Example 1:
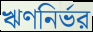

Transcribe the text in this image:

ঋণনির্ভর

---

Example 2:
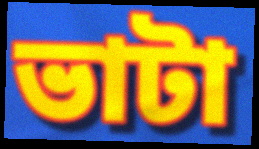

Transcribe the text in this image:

ভাটা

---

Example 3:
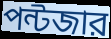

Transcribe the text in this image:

পন্টজার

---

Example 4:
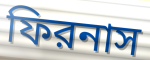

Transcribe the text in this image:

ফিরনাস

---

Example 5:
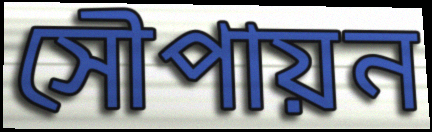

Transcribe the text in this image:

সৌপায়ন